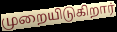
முறையிடுகிறார்